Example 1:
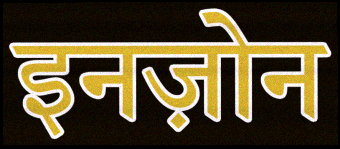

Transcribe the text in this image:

इनज़ोन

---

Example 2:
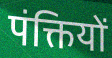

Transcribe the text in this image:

पंक्तियों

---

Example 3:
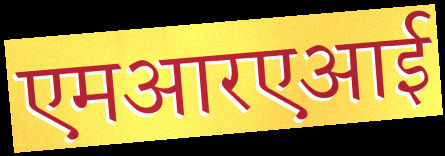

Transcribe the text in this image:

एमआरएआई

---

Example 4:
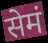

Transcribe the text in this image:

सेमं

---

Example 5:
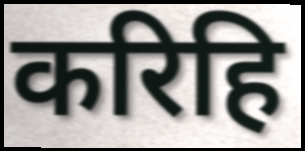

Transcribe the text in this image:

करिहि